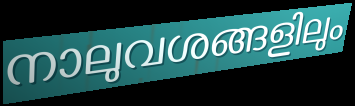
നാലുവശങ്ങളിലും